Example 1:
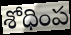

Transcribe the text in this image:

శోధింప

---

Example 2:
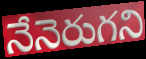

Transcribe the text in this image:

నేనెరుగని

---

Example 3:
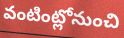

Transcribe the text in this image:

వంటింట్లోనుంచి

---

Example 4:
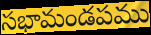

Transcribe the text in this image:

సభామండపము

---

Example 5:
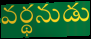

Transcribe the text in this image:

వర్థనుడు